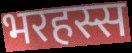
भरहस्स